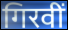
गिरवीं